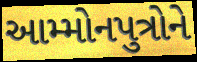
આમ્મોનપુત્રોને